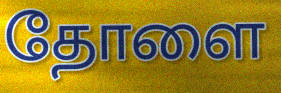
தோளை